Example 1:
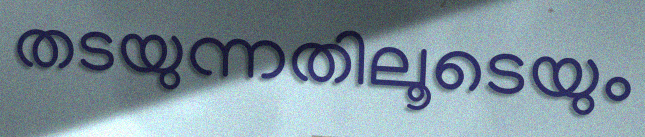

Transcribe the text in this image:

തടയുന്നതിലൂടെയും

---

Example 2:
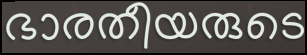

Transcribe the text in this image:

ഭാരതീയരുടെ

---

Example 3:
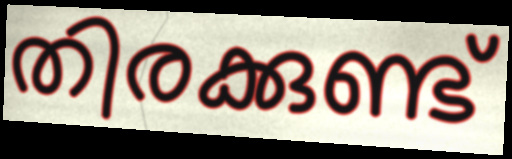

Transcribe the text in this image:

തിരക്കുണ്ട്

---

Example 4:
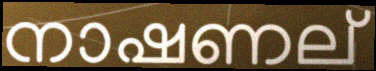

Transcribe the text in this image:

നാഷണല്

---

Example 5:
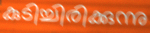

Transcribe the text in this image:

കുടിച്ചിരിക്കുന്നു